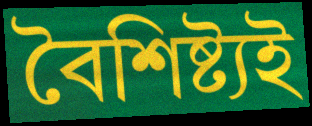
বৈশিষ্ট্যই